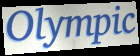
Olympic